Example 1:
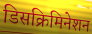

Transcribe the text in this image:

डिसक्रिमिनेशन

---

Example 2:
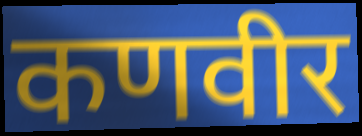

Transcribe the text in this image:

कणवीर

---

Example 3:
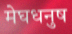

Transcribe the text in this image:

मेघधनुष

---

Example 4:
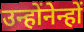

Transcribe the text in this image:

उन्होंनेन्हों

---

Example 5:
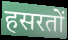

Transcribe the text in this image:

हसरतों